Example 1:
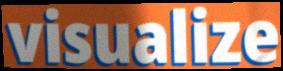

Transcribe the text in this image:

visualize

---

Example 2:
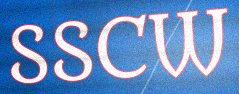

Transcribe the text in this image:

SSCW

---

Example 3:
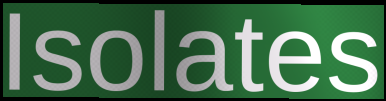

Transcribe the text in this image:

Isolates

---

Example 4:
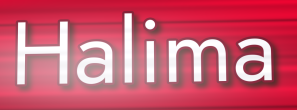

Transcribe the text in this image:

Halima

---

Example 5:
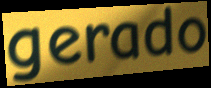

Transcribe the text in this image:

gerado